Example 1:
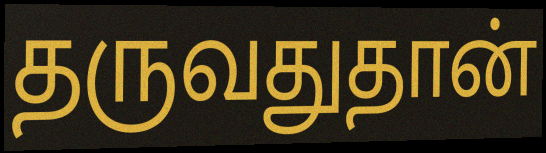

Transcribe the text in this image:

தருவதுதான்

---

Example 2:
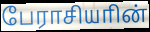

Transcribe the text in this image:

பேராசியரின்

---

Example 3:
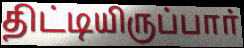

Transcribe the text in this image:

திட்டியிருப்பார்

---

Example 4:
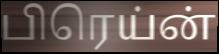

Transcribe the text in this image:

பிரெய்ன்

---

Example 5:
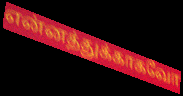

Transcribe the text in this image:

என்னத்துக்காகவோ